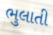
ભુલાતી